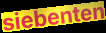
siebenten